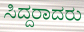
ಸಿದ್ದರಾದರು